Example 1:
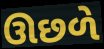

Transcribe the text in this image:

ઊછળે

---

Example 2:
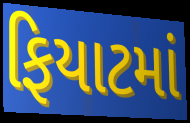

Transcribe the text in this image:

ફિયાટમાં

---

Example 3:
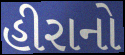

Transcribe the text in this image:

હીરાનો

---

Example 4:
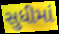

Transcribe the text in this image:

સુધીમાં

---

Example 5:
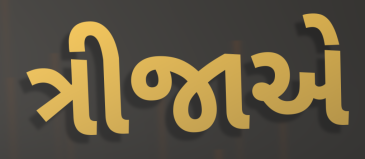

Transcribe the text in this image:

ત્રીજાએ